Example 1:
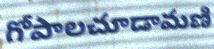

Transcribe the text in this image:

గోపాలచూడామణి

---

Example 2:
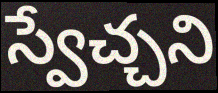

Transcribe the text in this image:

స్వేచ్చని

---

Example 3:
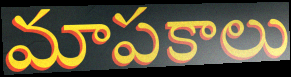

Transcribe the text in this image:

మాపకాలు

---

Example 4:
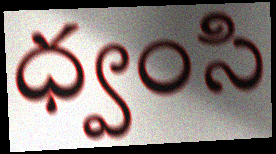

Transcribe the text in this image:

ధ్వంసి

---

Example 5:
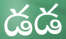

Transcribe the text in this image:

డడ